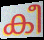
കീ